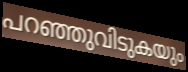
പറഞ്ഞുവിടുകയും